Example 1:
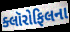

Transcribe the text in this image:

ક્લૉરોફિલના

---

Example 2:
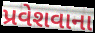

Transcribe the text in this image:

પ્રવેશવાના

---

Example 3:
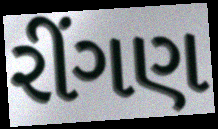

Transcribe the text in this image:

રીંગણ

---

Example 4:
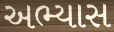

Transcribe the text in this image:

અભ્યાસ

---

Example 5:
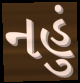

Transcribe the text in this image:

નહું